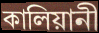
কালিয়ানী